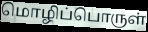
மொழிப்பொருள்